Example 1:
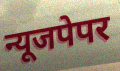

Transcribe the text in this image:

न्यूजपेपर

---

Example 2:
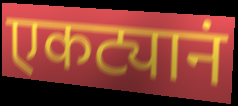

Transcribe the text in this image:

एकट्यानं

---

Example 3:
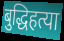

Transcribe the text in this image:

बुद्धिहत्या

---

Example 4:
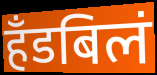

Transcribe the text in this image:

हँडबिलं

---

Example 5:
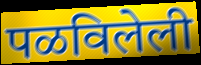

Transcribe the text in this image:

पळविलेली